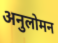
अनुलोमन